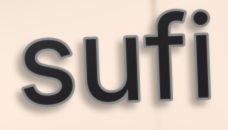
sufi